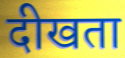
दीखता